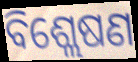
ବିଶ୍ଲେଷଣ